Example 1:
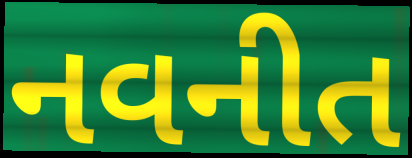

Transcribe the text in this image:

નવનીત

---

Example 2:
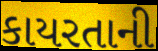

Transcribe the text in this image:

કાયરતાની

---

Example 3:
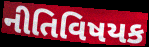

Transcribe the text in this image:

નીતિવિષયક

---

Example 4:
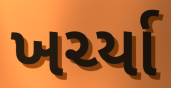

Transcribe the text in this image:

ખર્ચ્યા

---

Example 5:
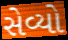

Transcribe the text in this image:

સેવ્યો